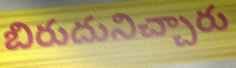
బిరుదునిచ్చారు